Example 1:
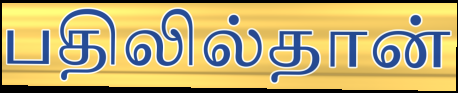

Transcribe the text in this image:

பதிலில்தான்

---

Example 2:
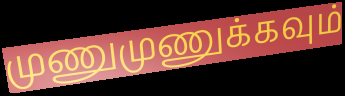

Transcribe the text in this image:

முணுமுணுக்கவும்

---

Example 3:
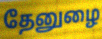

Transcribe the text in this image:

தேனுழை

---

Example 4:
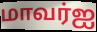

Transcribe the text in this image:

மாவர்ஐ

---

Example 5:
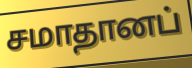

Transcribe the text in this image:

சமாதானப்